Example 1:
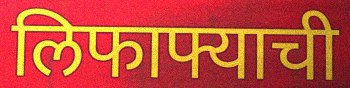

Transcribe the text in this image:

लिफाफ्याची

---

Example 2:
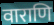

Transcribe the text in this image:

वाराणि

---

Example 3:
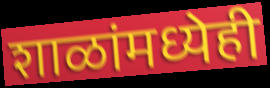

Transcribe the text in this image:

शाळांमध्येही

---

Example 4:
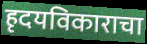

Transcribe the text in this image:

हृदयविकाराचा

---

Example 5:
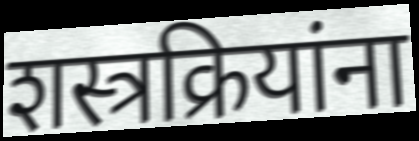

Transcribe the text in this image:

शस्त्रक्रियांना